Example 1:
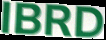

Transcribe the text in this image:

IBRD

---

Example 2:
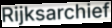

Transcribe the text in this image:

Rijksarchief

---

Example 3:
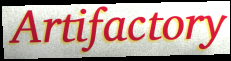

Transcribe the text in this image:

Artifactory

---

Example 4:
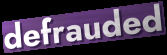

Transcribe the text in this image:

defrauded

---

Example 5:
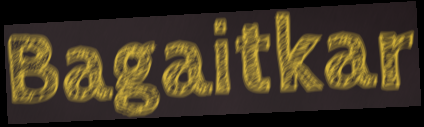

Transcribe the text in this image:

Bagaitkar